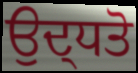
ਉਦ੍ਧਤੋ